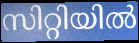
സിറ്റിയിൽ